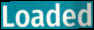
Loaded